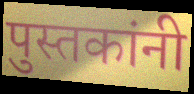
पुस्तकांनी